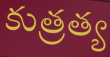
కుత్రత్య